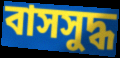
বাসসুদ্ধ